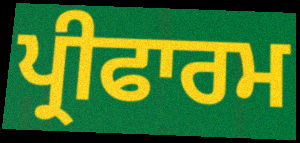
ਪ੍ਰੀਫਾਰਮ